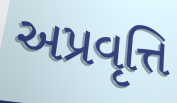
અપ્રવૃત્તિ